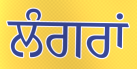
ਲੰਗਰਾਂ